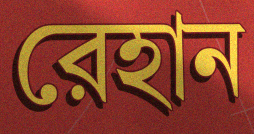
রেহান